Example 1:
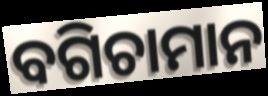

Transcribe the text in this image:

ବଗିଚାମାନ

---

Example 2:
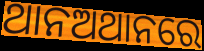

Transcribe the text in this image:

ଥାନଅଥାନରେ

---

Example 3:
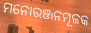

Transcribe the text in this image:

ମନୋରଞ୍ଜନମୂଳକ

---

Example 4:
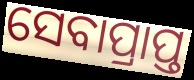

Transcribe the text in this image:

ସେବାପ୍ରାପ୍ତ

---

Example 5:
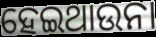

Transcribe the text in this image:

ହେଇଥାଉନା